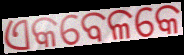
ଏକବେଳକେ